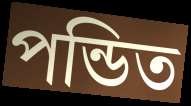
পন্ডিত